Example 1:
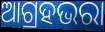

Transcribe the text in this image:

ଆଗ୍ରହଭରା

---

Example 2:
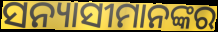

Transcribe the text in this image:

ସନ୍ୟାସୀମାନଙ୍କର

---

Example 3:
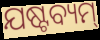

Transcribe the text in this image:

ଯଷ୍ଟବ୍ୟମ୍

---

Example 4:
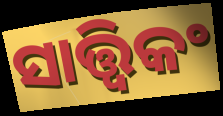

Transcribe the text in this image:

ସାତ୍ତ୍ୱିକଂ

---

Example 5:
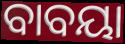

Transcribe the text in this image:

ବାବୟା